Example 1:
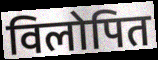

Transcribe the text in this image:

विलोपित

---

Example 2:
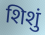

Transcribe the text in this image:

शिशुं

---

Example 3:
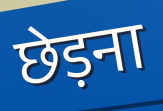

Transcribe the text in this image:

छेड़ना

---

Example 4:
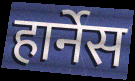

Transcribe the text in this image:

हार्नेस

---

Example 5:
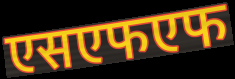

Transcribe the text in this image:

एसएफएफ